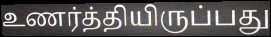
உணர்த்தியிருப்பது